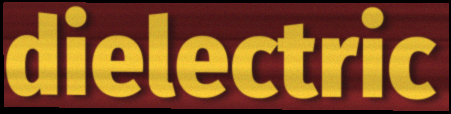
dielectric